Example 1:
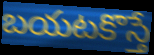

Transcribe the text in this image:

బయటకొస్తే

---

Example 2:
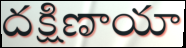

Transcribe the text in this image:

దక్షిణాయా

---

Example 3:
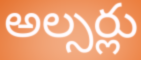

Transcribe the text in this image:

అల్సర్లు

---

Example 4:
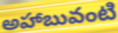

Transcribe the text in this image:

అహాబువంటి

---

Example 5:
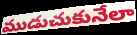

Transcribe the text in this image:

ముడుచుకునేలా